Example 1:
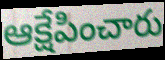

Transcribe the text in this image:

ఆక్షేపించారు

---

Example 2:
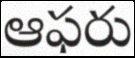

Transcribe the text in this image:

ఆఫరు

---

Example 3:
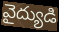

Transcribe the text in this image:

వైద్యుడి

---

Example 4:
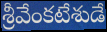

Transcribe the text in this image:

శ్రీవేంకటేశుడే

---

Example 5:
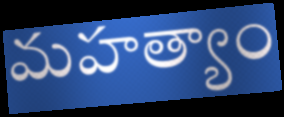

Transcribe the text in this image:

మహత్యాం